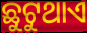
ଛୁଟୁଥାଏ